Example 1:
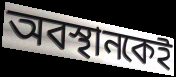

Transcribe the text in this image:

অবস্থানকেই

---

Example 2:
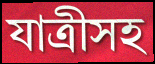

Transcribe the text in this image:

যাত্রীসহ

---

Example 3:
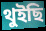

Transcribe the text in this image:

থুইছি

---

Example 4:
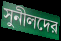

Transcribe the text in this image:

সুনীলদের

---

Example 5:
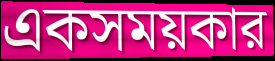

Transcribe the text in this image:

একসময়কার